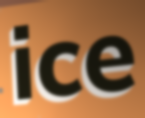
ice